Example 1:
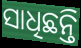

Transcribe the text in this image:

ସାଧିଛନ୍ତି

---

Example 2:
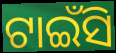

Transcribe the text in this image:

ଟାଇଁସି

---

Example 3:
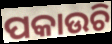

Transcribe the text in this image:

ପକାଉଚି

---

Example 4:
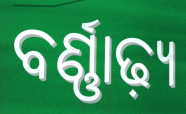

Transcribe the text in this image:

ବର୍ଣ୍ଣାଢ଼୍ୟ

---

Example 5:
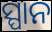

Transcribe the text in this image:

ସ୍ପାନ